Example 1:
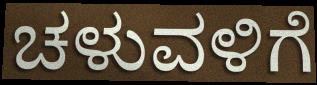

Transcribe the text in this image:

ಚಳುವಳಿಗೆ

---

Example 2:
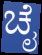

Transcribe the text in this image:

ಚೈ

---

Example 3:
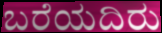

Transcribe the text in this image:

ಬರೆಯದಿರು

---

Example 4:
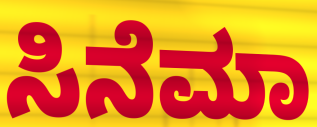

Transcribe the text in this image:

ಸಿನೆಮಾ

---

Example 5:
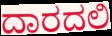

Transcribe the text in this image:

ದಾರದಲಿ